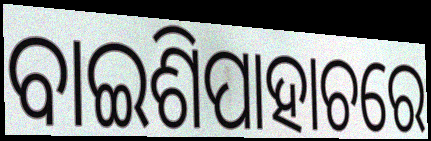
ବାଇଶିପାହାଚରେ